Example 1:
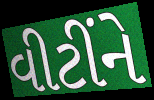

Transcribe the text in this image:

વીટીંને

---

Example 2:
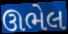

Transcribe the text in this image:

ઊભેલ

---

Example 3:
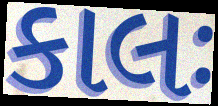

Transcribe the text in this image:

કાલઃ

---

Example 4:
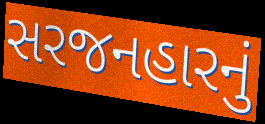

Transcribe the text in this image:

સરજનહારનું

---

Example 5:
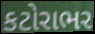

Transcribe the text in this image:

કટોરાભર